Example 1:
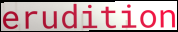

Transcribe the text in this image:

erudition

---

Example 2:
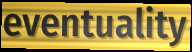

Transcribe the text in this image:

eventuality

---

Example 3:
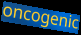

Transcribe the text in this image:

oncogenic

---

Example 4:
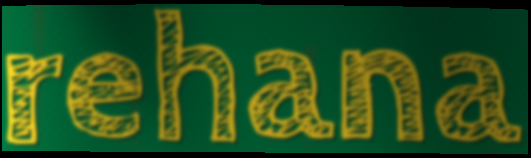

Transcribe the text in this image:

rehana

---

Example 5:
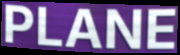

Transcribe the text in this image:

PLANE